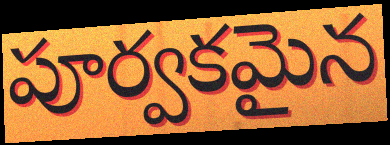
పూర్వకమైన